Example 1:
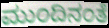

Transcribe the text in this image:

ಮುಂದಿನಂತೆ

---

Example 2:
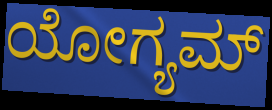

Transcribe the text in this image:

ಯೋಗ್ಯಮ್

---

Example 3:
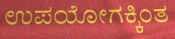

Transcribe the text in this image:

ಉಪಯೋಗಕ್ಕಿಂತ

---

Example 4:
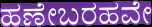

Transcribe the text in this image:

ಹಣೇಬರಹವೇ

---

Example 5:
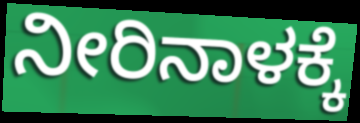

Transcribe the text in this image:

ನೀರಿನಾಳಕ್ಕೆ